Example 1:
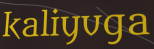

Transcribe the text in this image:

kaliyuga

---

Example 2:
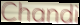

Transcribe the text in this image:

Chandi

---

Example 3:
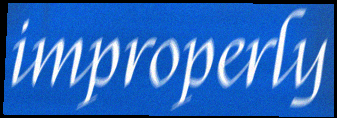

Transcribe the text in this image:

improperly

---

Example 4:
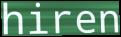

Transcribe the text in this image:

hiren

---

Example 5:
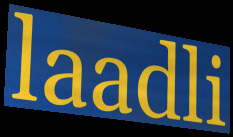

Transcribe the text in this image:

laadli